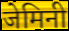
जेमिनी